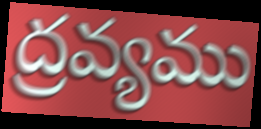
ద్రవ్యము